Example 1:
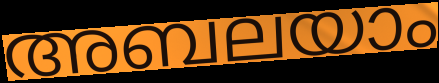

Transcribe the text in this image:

അബലയാം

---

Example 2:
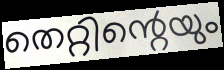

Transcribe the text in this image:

തെറ്റിന്റെയും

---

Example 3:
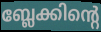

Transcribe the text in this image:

ബ്ലേക്കിന്റെ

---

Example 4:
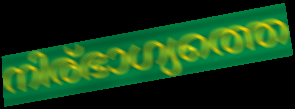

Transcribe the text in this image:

നിര്ഭാഗ്യത്തെ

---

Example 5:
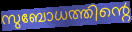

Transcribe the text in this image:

സുബോധത്തിന്റെ